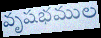
వృషభముల